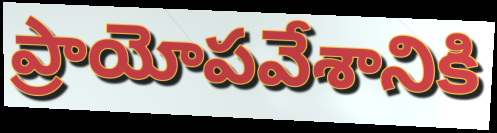
ప్రాయోపవేశానికి